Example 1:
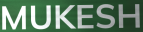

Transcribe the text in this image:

MUKESH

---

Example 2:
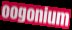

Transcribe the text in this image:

oogonium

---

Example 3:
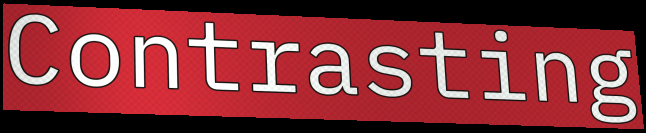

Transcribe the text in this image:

Contrasting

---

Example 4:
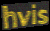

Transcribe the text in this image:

hvis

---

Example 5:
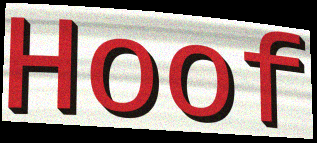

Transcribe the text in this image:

Hoof